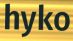
hyko